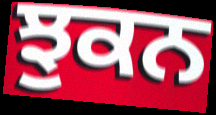
ਝੁਕਨ